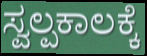
ಸ್ವಲ್ಪಕಾಲಕ್ಕೆ